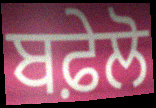
ਬਫ਼ੇਲੋ